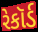
રેકૉર્ડ